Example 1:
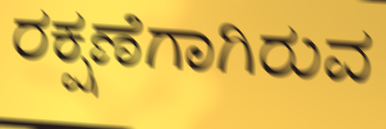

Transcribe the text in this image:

ರಕ್ಷಣೆಗಾಗಿರುವ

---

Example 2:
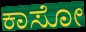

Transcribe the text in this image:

ಕಾಸೋ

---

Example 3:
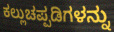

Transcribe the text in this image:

ಕಲ್ಲುಚಪ್ಪಡಿಗಳನ್ನು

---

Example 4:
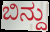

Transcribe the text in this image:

ಬಿನ್ದು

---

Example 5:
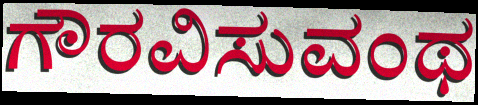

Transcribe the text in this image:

ಗೌರವಿಸುವಂಥ